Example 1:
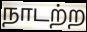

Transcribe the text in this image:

நாடற்ற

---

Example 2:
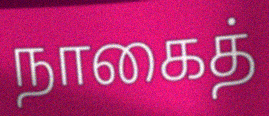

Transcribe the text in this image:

நாகைத்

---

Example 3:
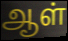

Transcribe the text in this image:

ஆள்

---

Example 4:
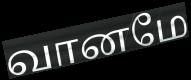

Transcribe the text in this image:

வானமே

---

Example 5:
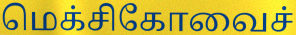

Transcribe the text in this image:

மெக்சிகோவைச்